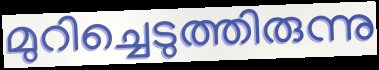
മുറിച്ചെടുത്തിരുന്നു